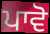
ਪਾਵੋ